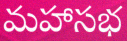
మహాసభ